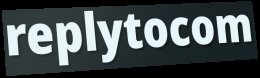
replytocom